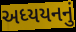
અધ્યયનનું